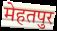
मेहतपुर